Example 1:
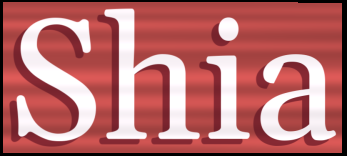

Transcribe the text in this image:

Shia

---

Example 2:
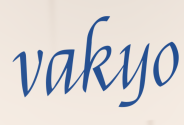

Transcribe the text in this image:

vakyo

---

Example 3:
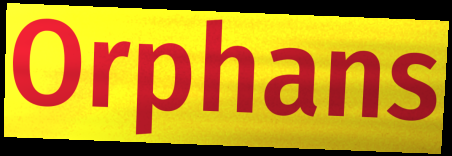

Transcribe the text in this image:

Orphans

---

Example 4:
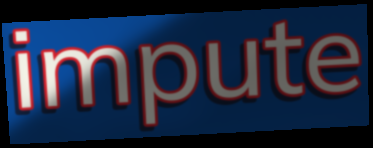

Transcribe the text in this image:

impute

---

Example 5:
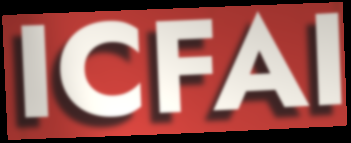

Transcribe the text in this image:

ICFAI